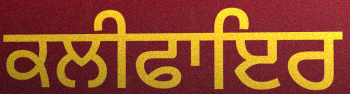
ਕਲੀਫਾਇਰ